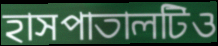
হাসপাতালটিও